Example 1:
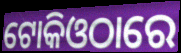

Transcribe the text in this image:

ଟୋକିଓଠାରେ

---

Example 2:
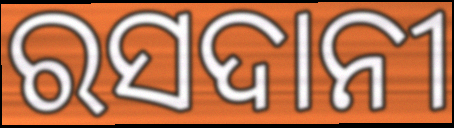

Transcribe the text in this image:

ରସଦାନୀ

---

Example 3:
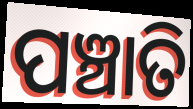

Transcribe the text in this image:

ପଞ୍ଚାତି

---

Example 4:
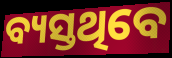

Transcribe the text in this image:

ବ୍ୟସ୍ତଥିବେ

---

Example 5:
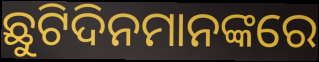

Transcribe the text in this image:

ଛୁଟିଦିନମାନଙ୍କରେ